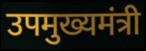
उपमुख्यमंत्री